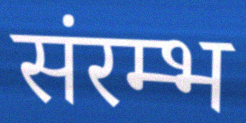
संरम्भ